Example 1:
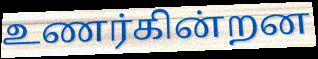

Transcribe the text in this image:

உணர்கின்றன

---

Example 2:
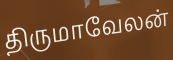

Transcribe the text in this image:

திருமாவேலன்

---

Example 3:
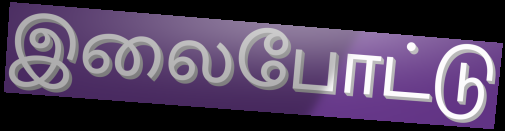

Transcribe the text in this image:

இலைபோட்டு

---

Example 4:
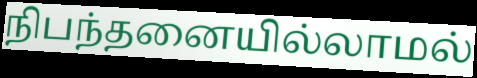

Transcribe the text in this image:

நிபந்தனையில்லாமல்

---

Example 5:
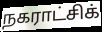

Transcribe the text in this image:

நகராட்சிக்